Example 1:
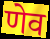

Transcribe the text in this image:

णेव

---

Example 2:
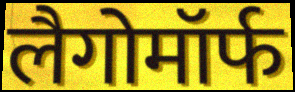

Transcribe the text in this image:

लैगोमॉर्फ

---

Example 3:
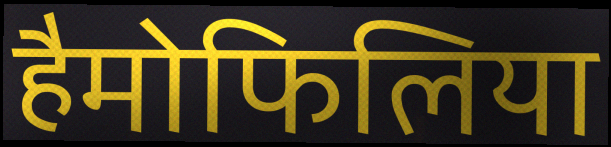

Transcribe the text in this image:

हैमोफिलिया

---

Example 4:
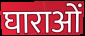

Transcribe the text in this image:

घाराओं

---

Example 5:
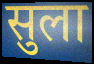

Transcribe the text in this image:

सुला